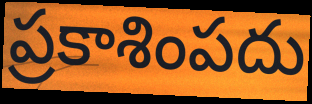
ప్రకాశింపదు